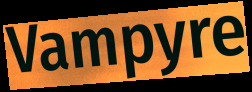
Vampyre